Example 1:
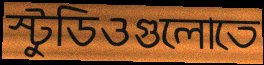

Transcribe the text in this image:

স্টুডিওগুলোতে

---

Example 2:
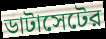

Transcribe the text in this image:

ডাটাসেটের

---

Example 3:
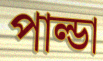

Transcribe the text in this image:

পাল্ডা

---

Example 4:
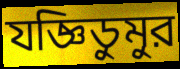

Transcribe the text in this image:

যজ্ঞিডুমুর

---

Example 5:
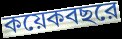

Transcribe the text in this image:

কয়েকবছরে